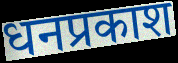
धनप्रकाश